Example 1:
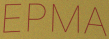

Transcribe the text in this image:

EPMA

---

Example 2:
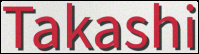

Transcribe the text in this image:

Takashi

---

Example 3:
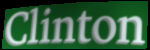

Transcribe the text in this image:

Clinton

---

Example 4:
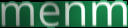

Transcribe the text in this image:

menm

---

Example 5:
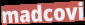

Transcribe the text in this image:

madcovi